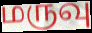
மருவு